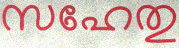
സഹേതു